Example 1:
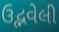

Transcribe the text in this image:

ઉદ્ભવેલી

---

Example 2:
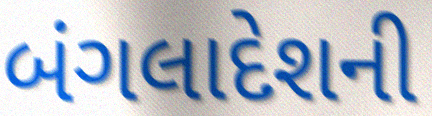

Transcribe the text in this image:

બંગલાદેશની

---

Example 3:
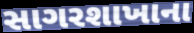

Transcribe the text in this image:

સાગરશાખાના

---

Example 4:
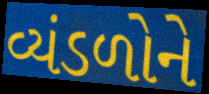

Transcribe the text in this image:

વ્યંડળોને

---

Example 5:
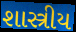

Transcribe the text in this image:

શાસ્ત્રીય